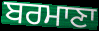
ਬਰਮਾਣਾ